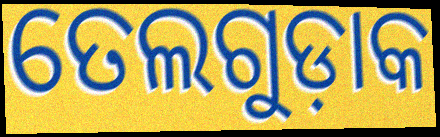
ତେଲଗୁଡ଼ାକ